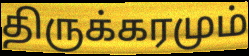
திருக்கரமும்